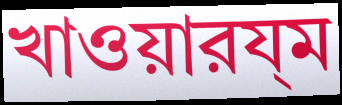
খাওয়ারয্ম